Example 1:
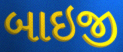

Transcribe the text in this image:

બાઇજી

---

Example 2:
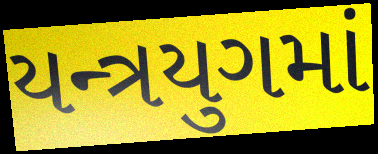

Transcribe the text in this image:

યન્ત્રયુગમાં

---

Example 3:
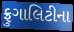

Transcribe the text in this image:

ફ્રુગાલિટીના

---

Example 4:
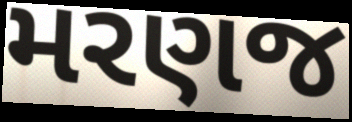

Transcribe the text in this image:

મરણજ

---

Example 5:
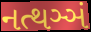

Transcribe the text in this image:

નત્થઞ્ઞં